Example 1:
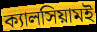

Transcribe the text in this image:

ক্যালসিয়ামই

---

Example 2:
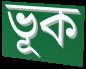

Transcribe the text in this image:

ভূক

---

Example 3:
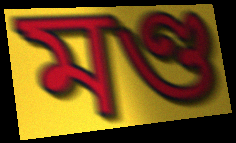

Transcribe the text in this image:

মণ্ড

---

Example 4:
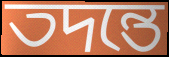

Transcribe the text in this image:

তদন্তে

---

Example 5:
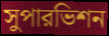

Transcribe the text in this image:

সুপারভিশন